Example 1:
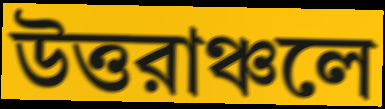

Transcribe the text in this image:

উত্তরাঞ্চলে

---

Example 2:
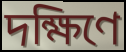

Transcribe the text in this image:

দক্ষিণে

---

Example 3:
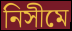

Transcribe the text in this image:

নিসীমে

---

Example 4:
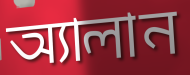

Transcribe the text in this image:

অ্যালান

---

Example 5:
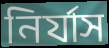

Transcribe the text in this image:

নির্যাস